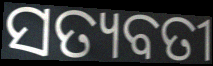
ସତ୍ୟବତୀ